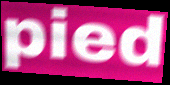
pied